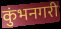
कुंभनगरी